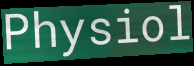
Physiol